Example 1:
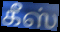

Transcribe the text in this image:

கீஸ்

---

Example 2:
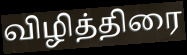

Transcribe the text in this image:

விழித்திரை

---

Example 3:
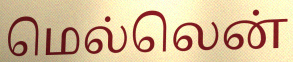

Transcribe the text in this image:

மெல்லென்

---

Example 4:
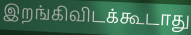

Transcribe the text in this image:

இறங்கிவிடக்கூடாது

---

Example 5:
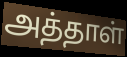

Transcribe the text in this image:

அத்தாள்